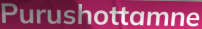
Purushottamne